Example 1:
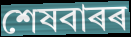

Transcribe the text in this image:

শেষবাৰৰ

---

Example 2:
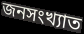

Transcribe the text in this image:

জনসংখ্যাত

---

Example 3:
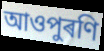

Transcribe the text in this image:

আওপুৰণি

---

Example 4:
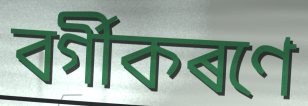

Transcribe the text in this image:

বৰ্গীকৰণে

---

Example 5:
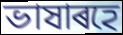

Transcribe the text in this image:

ভাষাৰহে